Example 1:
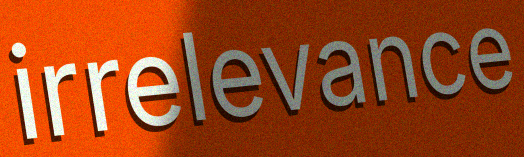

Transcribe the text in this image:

irrelevance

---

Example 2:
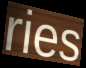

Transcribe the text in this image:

ries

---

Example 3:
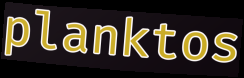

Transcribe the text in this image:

planktos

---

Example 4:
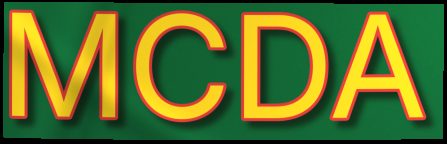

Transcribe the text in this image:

MCDA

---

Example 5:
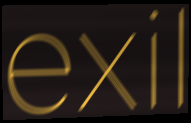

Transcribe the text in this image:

exil